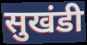
सुखंडी